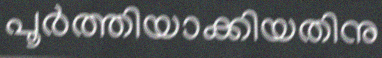
പൂർത്തിയാക്കിയതിനു